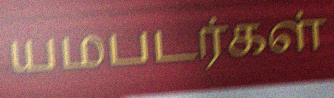
யமபடர்கள்